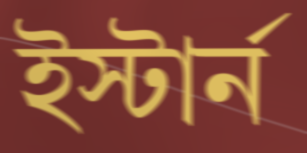
ইস্টার্ন